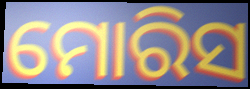
ମୋରିସ